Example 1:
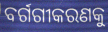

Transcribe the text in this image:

ବର୍ଗଗୀକରଣକୁ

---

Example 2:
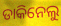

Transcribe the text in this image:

ଡାକିନେଲୁ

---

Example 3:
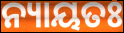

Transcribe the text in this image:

ନ୍ୟାୟତଃ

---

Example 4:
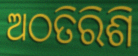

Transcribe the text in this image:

ଅଠତିରିଶି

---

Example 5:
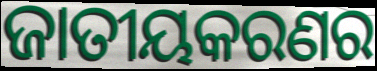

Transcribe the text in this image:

ଜାତୀୟକରଣର